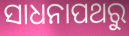
ସାଧନାପଥରୁ